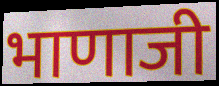
भाणाजी